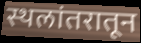
स्थलांतरातून